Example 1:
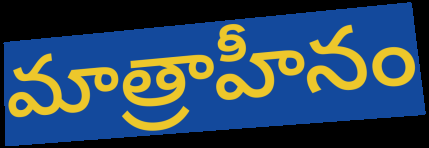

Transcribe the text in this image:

మాత్రాహీనం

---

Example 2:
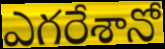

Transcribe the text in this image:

ఎగరేశానో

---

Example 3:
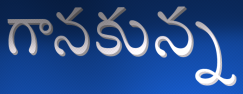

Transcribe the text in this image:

గానకున్న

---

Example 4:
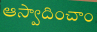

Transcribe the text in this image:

ఆస్వాదించాం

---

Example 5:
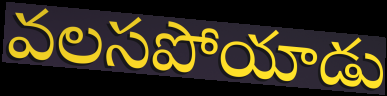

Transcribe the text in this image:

వలసపోయాడు